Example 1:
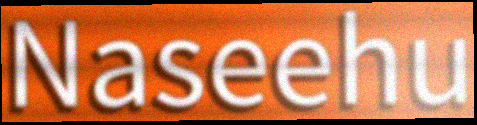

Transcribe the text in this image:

Naseehu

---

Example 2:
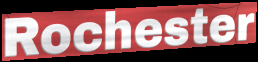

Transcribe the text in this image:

Rochester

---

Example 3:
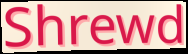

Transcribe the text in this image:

Shrewd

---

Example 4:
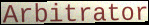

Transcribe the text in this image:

Arbitrator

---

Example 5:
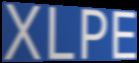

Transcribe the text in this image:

XLPE